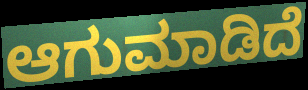
ಆಗುಮಾಡಿದೆ